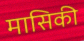
मासिकी